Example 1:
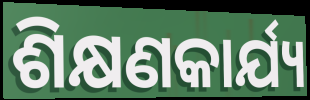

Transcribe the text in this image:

ଶିକ୍ଷଣକାର୍ଯ୍ୟ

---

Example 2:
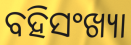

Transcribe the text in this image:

ବହିସଂଖ୍ୟା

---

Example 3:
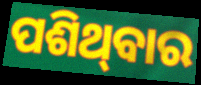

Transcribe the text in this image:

ପଶିଥ୍‌ବାର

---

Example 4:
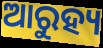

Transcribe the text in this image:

ଆରୁହ୍ୟ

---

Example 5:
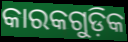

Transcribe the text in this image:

କାରକଗୁଡ଼ିକ